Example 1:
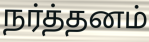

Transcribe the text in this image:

நர்த்தனம்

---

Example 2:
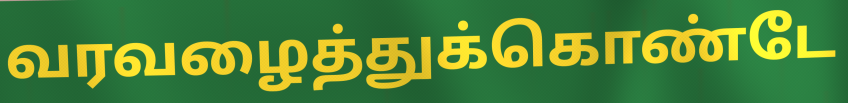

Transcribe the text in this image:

வரவழைத்துக்கொண்டே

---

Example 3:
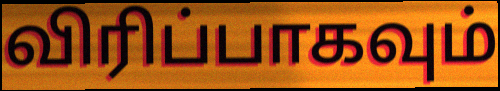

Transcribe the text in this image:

விரிப்பாகவும்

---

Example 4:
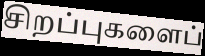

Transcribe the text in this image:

சிறப்புகளைப்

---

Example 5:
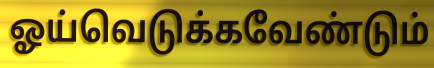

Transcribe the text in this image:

ஓய்வெடுக்கவேண்டும்